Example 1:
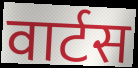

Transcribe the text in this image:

वार्टस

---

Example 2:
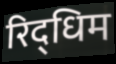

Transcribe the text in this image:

रिद्धिम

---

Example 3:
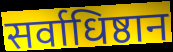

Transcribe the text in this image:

सर्वाधिष्ठान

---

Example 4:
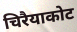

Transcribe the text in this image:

चिरैयाकोट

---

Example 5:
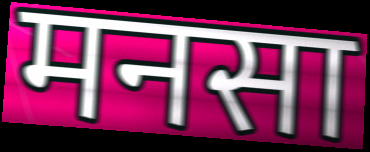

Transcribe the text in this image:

मनसा